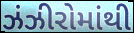
ઝંઝીરોમાંથી